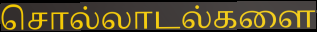
சொல்லாடல்களை